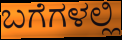
ಬಗೆಗಳಲ್ಲಿ